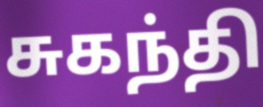
சுகந்தி